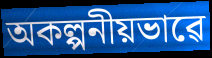
অকল্পনীয়ভাৱে